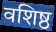
वशिष्ठ